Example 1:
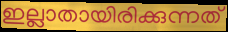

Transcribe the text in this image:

ഇല്ലാതായിരിക്കുന്നത്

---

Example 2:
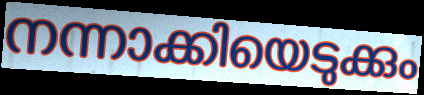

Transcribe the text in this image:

നന്നാക്കിയെടുക്കും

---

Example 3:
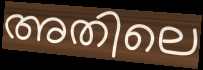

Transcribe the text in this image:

അതിലെ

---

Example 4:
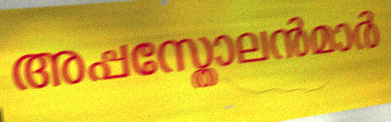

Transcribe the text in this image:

അപ്പസ്തോലൻമാർ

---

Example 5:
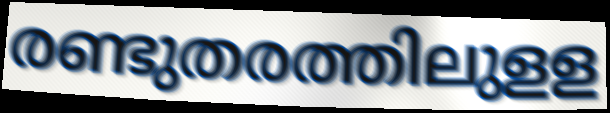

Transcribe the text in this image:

രണ്ടുതരത്തിലുളള